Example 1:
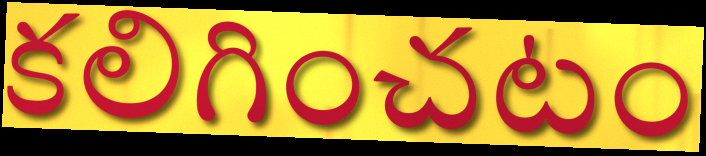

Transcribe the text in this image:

కలిగించటం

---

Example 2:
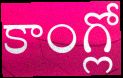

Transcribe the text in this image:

కాంగ్లో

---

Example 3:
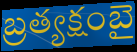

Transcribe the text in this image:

బ్రత్యక్షంబై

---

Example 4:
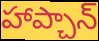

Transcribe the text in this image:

హాప్చాన్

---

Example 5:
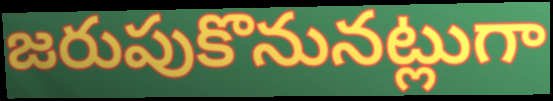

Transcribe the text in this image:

జరుపుకొనునట్లుగా